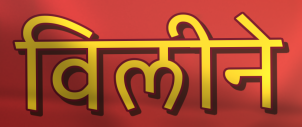
विलीने